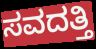
ಸವದತ್ತಿ